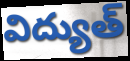
విద్యుత్